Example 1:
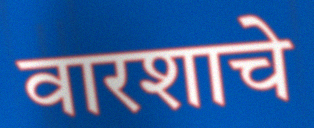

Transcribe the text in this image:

वारशाचे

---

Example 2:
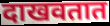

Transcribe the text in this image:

दाखवतात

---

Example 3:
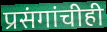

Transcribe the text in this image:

प्रसंगांचीही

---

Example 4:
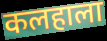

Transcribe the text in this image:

कलहाला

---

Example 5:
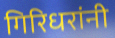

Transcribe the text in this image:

गिरिधरांनी